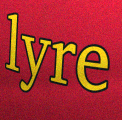
lyre